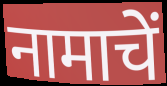
नामाचें